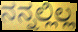
ನನ್ನಲ್ಲಿಲ್ಲ